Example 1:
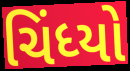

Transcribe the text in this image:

ચિંધ્યો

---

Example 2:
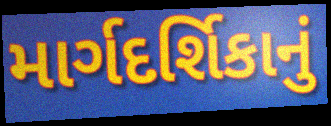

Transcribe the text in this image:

માર્ગદર્શિકાનું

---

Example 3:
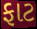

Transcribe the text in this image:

ફાટ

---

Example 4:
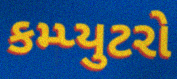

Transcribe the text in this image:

કમ્પ્યુટરો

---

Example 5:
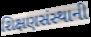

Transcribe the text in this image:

શિક્ષણસંસ્થાની